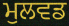
ਮੁਲਵਡ